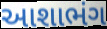
આશાભંગ